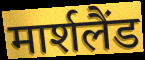
मार्शलैंड